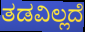
ತಡವಿಲ್ಲದೆ